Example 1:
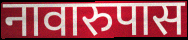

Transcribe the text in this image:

नावारुपास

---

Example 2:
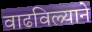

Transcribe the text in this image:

वाढविल्याने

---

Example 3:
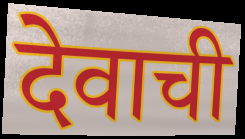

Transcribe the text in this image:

देवाची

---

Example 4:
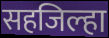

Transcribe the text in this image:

सहजिल्हा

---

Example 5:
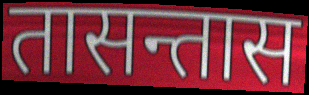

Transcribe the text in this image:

तासन्तास